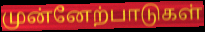
முன்னேற்பாடுகள்